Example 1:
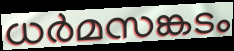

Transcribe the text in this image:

ധർമസങ്കടം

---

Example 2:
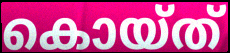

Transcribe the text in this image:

കൊയ്ത്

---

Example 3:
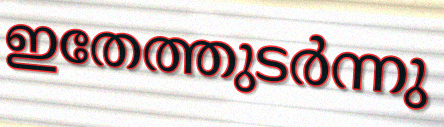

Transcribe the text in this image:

ഇതേത്തുടർന്നു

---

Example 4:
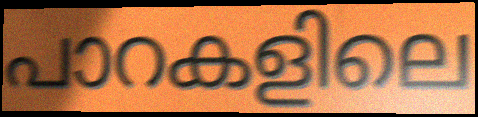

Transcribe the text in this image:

പാറകളിലെ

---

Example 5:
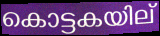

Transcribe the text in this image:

കൊട്ടകയില്